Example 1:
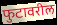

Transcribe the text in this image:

फुटावरील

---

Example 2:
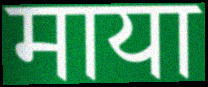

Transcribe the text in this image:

माया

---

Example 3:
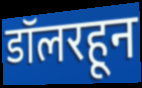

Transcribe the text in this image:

डॉलरहून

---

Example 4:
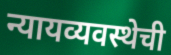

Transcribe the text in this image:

न्यायव्यवस्थेची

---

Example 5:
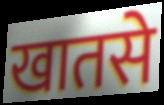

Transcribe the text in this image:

खातसे